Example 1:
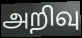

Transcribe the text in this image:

அறிவு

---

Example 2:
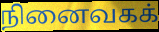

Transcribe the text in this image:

நினைவகக்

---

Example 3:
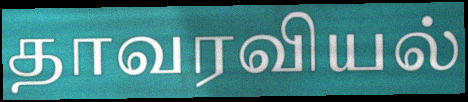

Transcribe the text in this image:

தாவரவியல்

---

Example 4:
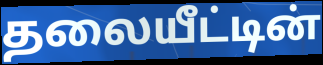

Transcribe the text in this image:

தலையீட்டின்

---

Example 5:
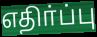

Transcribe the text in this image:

எதிர்ப்பு